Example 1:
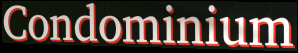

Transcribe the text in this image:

Condominium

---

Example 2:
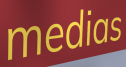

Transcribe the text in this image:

medias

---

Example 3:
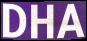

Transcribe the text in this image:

DHA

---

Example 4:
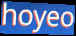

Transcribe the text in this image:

hoyeo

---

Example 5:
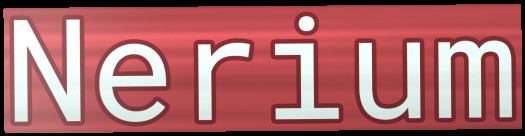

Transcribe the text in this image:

Nerium